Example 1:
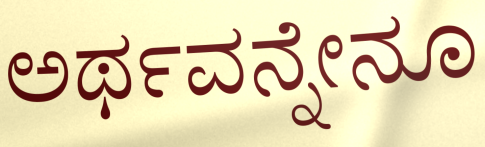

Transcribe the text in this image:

ಅರ್ಥವನ್ನೇನೂ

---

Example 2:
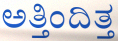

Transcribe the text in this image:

ಅತ್ತಿಂದಿತ್ತ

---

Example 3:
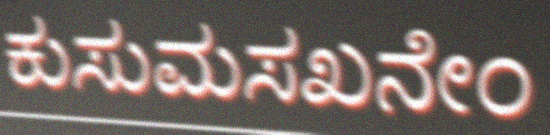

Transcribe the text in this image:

ಕುಸುಮಸಖನೇಂ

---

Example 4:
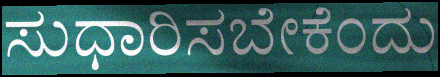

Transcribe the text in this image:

ಸುಧಾರಿಸಬೇಕೆಂದು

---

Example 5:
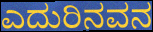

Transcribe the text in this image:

ಎದುರಿನವನ